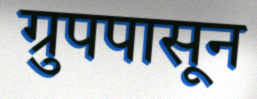
ग्रुपपासून